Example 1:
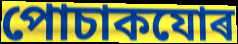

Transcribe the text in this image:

পোচাকযোৰ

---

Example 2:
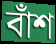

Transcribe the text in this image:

বাঁশ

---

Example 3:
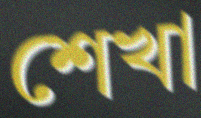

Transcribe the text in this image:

শেখা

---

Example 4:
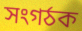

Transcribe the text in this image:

সংগঠক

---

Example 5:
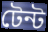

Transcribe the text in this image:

টেন্ট